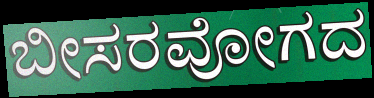
ಬೀಸರವೋಗದ